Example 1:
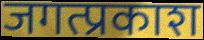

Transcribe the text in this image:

जगत्प्रकाश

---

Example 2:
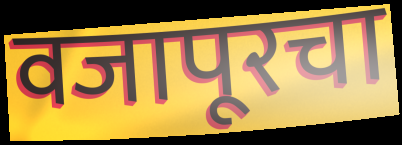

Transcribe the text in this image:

वजापूरचा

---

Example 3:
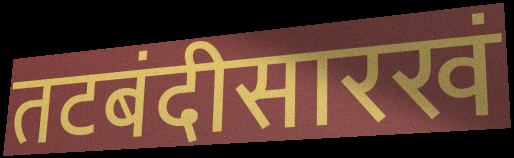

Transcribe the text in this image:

तटबंदीसारखं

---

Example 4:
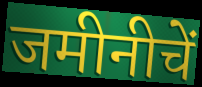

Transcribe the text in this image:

जमीनीचें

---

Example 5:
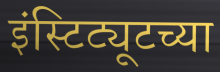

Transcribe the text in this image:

इंस्टिट्यूटच्या